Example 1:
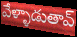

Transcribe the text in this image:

వేళ్ళాడుతావ్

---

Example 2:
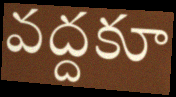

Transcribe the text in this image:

వద్దకూ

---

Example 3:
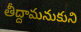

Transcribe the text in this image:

తీద్దామనుకుని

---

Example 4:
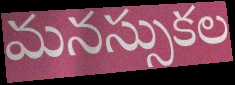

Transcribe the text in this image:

మనస్సుకల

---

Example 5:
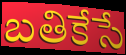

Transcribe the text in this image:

బతికేసే